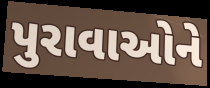
પુરાવાઓને